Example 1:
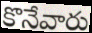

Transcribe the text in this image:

కొనేవారు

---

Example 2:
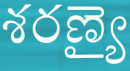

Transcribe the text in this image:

శరణ్యై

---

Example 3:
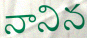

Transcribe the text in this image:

నానిన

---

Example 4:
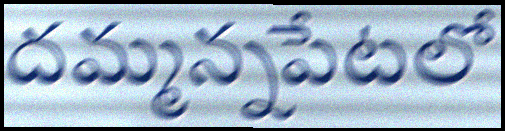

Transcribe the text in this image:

దమ్మన్నపేటలో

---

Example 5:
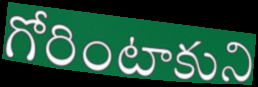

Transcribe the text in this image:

గోరింటాకుని